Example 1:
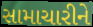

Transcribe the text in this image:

સામાચારીને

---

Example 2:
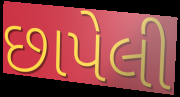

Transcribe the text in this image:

છાપેલી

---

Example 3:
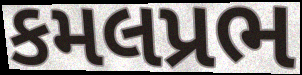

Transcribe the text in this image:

કમલપ્રભ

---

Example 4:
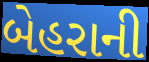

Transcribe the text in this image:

બેહરાની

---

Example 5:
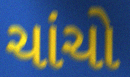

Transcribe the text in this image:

ચાંચો